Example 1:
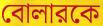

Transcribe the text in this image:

বোলারকে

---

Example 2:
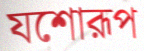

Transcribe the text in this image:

যশোরূপ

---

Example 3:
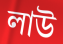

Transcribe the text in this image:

লাউ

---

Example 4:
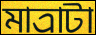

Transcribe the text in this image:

মাত্রাটা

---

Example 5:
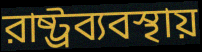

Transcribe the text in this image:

রাষ্ট্রব্যবস্থায়